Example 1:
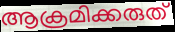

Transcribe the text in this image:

ആക്രമിക്കരുത്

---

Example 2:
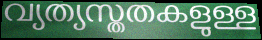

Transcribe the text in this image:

വ്യത്യസ്തതകളുള്ള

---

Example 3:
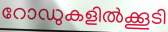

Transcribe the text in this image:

റോഡുകളിൽക്കൂടി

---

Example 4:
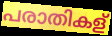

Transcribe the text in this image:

പരാതികള്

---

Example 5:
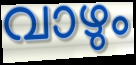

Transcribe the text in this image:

വാഴും